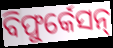
ବିଫୁର୍କେସନ୍